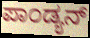
ಪಾಂಡ್ಯನ್